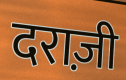
दराज़ी